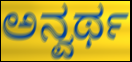
ಅನ್ವರ್ಥ